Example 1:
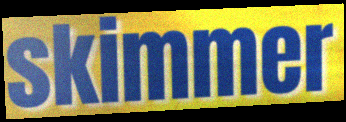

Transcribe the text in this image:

skimmer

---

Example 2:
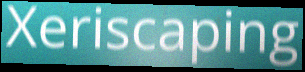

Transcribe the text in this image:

Xeriscaping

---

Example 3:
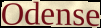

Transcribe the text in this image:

Odense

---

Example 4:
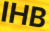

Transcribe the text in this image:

IHB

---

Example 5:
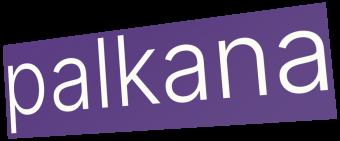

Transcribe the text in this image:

palkana